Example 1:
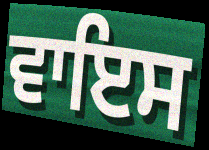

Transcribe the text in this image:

ਵਾਇਸ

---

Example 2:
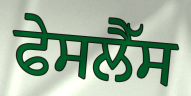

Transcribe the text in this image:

ਫੇਸਲੈੱਸ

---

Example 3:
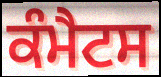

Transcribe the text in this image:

ਕੰਮੈਟਸ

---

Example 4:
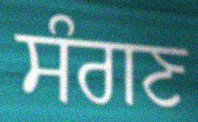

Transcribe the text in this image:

ਸੰਗਣ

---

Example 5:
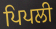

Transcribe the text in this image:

ਪਿਪਲੀ